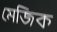
মেজিক